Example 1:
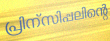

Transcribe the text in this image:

പ്രിന്സിപ്പലിന്റെ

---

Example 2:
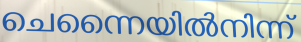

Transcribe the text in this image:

ചെന്നൈയിൽനിന്ന്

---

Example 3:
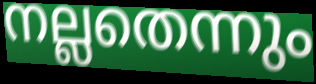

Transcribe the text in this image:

നല്ലതെന്നും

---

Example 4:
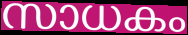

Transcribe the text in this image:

സാധകം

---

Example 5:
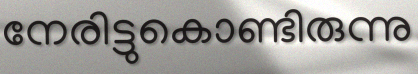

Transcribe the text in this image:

നേരിട്ടുകൊണ്ടിരുന്നു